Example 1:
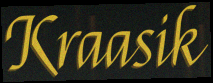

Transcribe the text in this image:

Kraasik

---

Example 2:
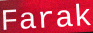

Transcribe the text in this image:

Farak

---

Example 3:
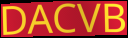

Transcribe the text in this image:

DACVB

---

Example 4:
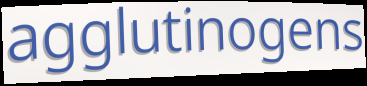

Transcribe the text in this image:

agglutinogens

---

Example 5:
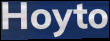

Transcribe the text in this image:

Hoyto